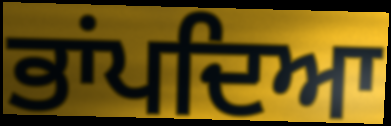
ਭਾਂਪਦਿਆ